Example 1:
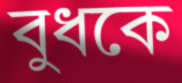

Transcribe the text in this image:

বুধকে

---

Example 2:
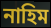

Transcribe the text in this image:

নাহিম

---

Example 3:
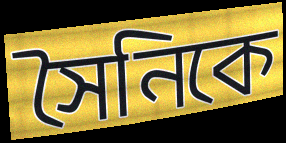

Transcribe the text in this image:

সৈনিকে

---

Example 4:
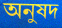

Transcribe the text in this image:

অনুষদ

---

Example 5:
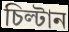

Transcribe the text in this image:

চিল্টান